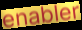
enabler